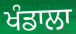
ਖੰਡਾਲਾ